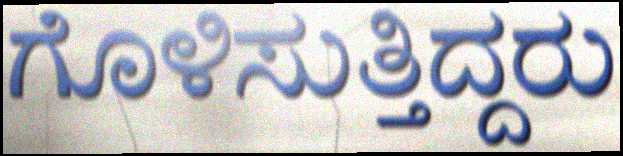
ಗೊಳಿಸುತ್ತಿದ್ದರು